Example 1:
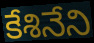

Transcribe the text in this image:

కేశినేని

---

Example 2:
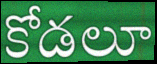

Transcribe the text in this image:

కోడలూ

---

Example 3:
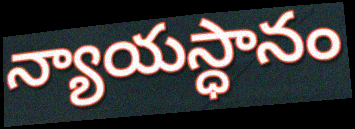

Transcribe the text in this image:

న్యాయస్ధానం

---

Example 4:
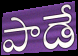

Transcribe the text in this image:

పాడే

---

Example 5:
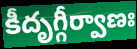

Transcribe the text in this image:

కీదృగ్గీర్వాణః